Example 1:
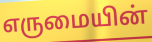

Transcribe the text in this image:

எருமையின்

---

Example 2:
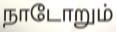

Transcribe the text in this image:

நாடோறும்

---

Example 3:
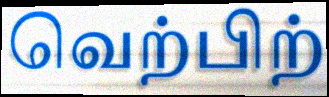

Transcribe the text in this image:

வெற்பிற்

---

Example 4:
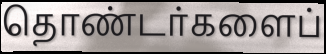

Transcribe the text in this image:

தொண்டர்களைப்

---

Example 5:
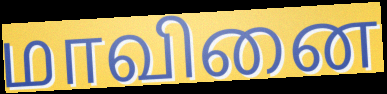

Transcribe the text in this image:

மாவினை